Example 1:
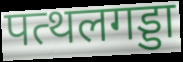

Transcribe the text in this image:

पत्थलगड्डा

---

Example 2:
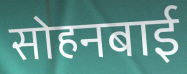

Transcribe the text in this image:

सोहनबाई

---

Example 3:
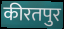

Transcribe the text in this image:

कीरतपुर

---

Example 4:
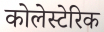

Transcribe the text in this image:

कोलेस्टेरिक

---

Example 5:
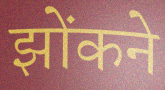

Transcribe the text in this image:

झोंकने